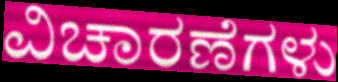
ವಿಚಾರಣೆಗಳು